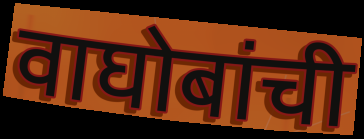
वाघोबांची